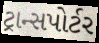
ટ્રાન્સપોર્ટર